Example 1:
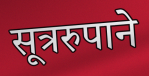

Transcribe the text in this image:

सूत्ररुपाने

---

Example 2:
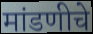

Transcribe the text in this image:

मांडणीचे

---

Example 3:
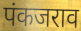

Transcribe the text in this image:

पंकजराव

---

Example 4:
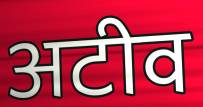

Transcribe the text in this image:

अटीव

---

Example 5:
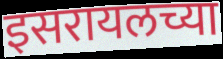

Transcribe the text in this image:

इसरायलच्या